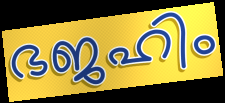
ഭജഹിം